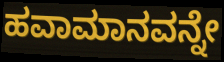
ಹವಾಮಾನವನ್ನೇ